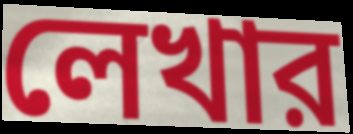
লেখার